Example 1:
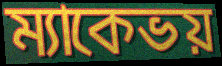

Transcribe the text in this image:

ম্যাকেভয়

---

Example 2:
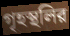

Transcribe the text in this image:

গৃহস্থলির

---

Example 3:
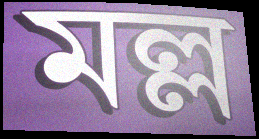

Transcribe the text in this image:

মল্ল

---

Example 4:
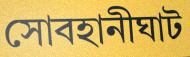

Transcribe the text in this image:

সোবহানীঘাট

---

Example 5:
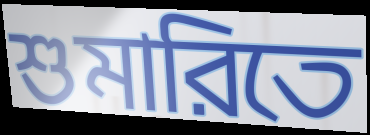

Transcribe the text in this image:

শুমারিতে